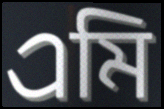
এমি